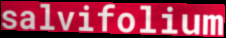
salvifolium